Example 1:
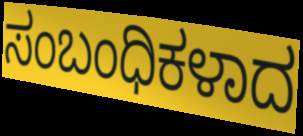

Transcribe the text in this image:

ಸಂಬಂಧಿಕಳಾದ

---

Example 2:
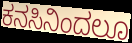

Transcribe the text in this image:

ಕನಸಿನಿಂದಲೂ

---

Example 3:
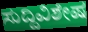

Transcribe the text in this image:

ಸುದ್ದಿವಿಶೇಷ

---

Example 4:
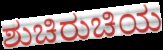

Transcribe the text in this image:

ಶುಚಿರುಚಿಯ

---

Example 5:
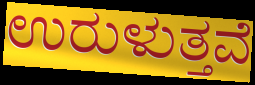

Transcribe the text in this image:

ಉರುಳುತ್ತವೆ